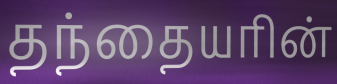
தந்தையரின்